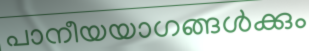
പാനീയയാഗങ്ങൾക്കും